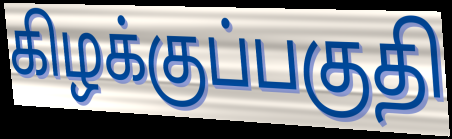
கிழக்குப்பகுதி